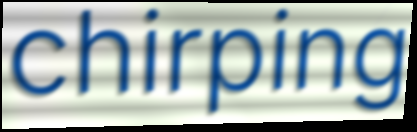
chirping